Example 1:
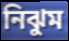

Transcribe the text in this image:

নিঝুম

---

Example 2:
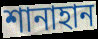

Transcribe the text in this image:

শানাহান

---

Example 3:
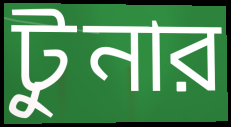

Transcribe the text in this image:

টুনার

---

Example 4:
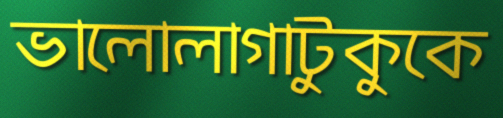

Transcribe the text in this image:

ভালোলাগাটুকুকে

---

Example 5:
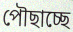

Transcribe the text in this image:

পৌছাচ্ছে